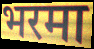
भरमा